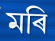
মৰি